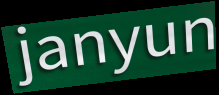
janyun